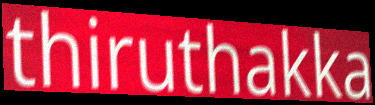
thiruthakka